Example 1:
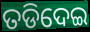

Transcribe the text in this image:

ତଡିଦେଇ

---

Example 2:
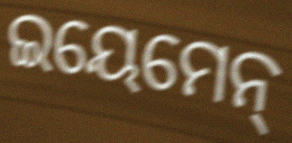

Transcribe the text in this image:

ଇୟେମେନ୍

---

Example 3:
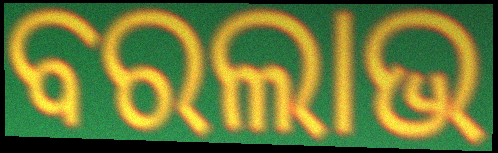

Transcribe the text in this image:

ବରଲାଭ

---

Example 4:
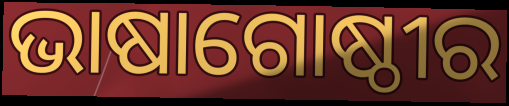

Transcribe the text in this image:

ଭାଷାଗୋଷ୍ଠୀର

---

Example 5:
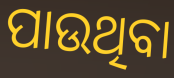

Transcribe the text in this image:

ପାଉଥିବା